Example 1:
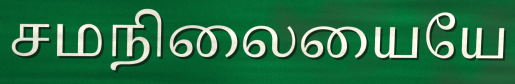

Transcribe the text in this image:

சமநிலையையே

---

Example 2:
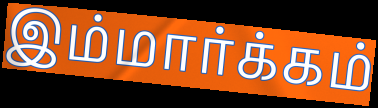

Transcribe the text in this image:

இம்மார்க்கம்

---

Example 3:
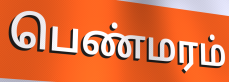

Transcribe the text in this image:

பெண்மரம்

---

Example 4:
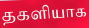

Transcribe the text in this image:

தகளியாக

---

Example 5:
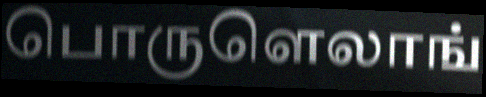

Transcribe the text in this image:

பொருளெலாங்